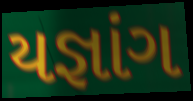
યજ્ઞાંગ